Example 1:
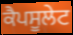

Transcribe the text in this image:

ਕੈਪਸੂਲੇਟ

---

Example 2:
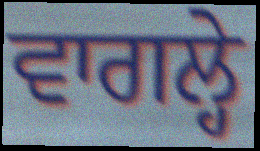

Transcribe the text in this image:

ਵਾਗਲ੍ਹੇ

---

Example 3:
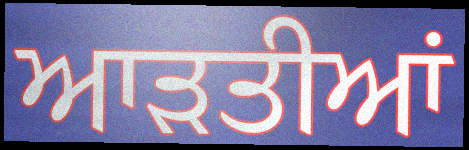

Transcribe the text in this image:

ਆਡ਼ਤੀਆਂ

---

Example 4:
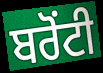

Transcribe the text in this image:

ਬਰੋਂਟੀ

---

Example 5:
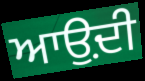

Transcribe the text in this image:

ਆਉ਼ਦੀ